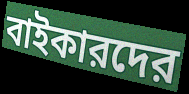
বাইকারদের